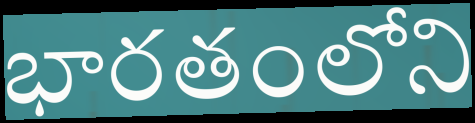
భారతంలోని